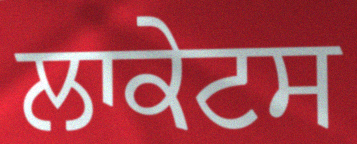
ਲਾਕੇਟਸ